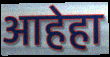
आहेहा